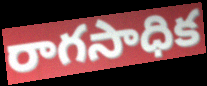
రాగసాధిక